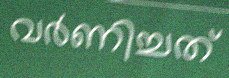
വർണിച്ചത്